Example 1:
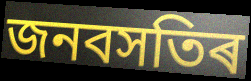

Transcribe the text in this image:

জনবসতিৰ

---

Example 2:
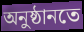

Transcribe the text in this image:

অনুষ্ঠানতে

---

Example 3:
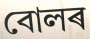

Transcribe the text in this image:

বোলৰ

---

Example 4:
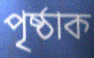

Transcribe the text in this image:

পৃষ্ঠাক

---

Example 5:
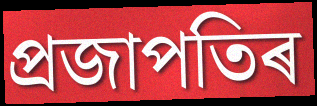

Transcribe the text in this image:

প্ৰজাপতিৰ